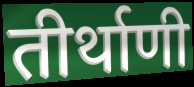
तीर्थाणी